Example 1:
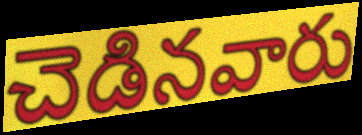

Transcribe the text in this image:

చెడినవారు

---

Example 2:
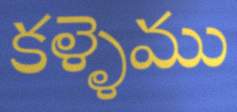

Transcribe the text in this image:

కళ్ళెము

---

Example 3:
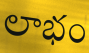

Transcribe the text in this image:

లాభం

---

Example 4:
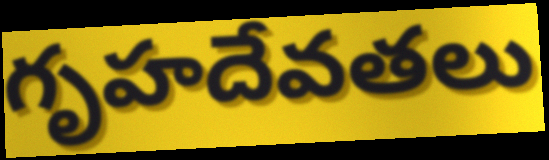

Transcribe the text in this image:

గృహదేవతలు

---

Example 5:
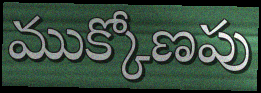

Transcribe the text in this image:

ముక్కోణపు